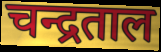
चन्द्रताल